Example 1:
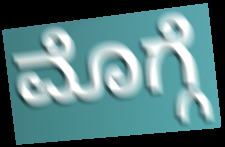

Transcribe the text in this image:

ಮೊಗ್ಗೆ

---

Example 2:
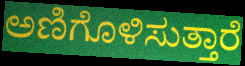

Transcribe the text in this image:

ಅಣಿಗೊಳಿಸುತ್ತಾರೆ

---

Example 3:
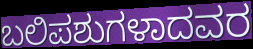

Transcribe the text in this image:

ಬಲಿಪಶುಗಳಾದವರ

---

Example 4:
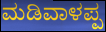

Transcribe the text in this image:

ಮಡಿವಾಳಪ್ಪ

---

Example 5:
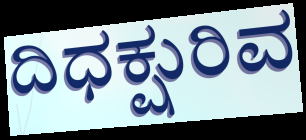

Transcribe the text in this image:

ದಿಧಕ್ಷುರಿವ